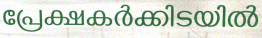
പ്രേക്ഷകർക്കിടയിൽ